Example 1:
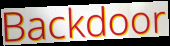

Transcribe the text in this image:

Backdoor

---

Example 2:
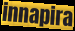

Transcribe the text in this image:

innapira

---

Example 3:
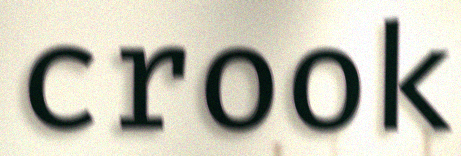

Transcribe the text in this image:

crook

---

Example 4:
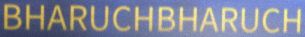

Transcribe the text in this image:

BHARUCHBHARUCH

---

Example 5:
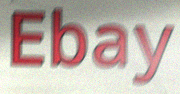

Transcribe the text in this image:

Ebay